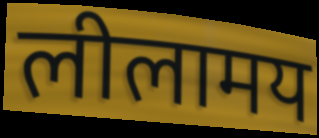
लीलामय